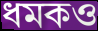
ধমকও